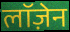
लॉज़ेन